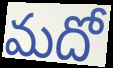
మదో